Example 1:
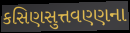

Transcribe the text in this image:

કસિણસુત્તવણ્ણના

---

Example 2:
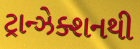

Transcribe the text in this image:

ટ્રાન્ઝેક્શનથી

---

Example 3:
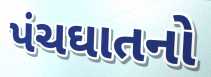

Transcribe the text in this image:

પંચઘાતનો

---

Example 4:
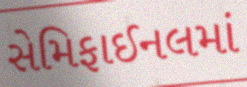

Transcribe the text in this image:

સેમિફાઈનલમાં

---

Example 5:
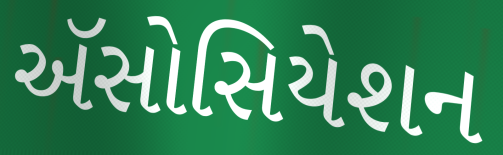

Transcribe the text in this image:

ઍસોસિયેશન